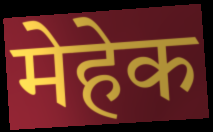
मेहेक